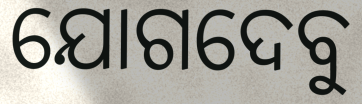
ଯୋଗଦେବୁ